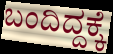
ಬಂದಿದ್ದಕ್ಕೆ